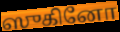
ஸுகினோ